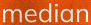
median